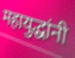
महायुद्धांनी